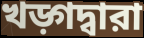
খড়্গদ্বারা